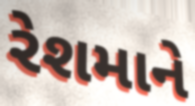
રેશમાને